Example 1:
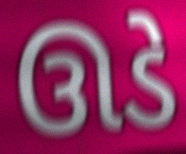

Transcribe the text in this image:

ઊડે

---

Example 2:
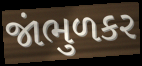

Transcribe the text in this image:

જાંભુળકર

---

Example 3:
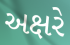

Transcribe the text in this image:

અક્ષરે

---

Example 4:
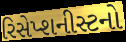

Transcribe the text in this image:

રિસેપ્શનીસ્ટનો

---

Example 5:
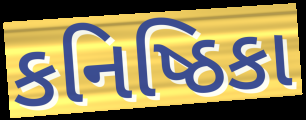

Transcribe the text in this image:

કનિષ્ઠિકા